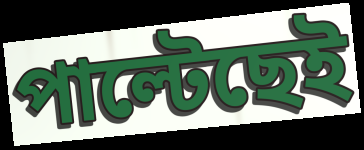
পাল্টেছেই